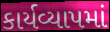
કાર્યવ્યાપમાં